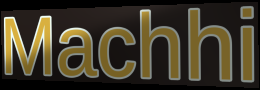
Machhi